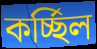
কর্চ্ছিল